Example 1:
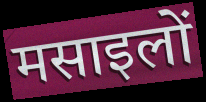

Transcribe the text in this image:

मसाइलों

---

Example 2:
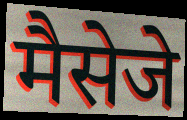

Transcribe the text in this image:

मैसेजे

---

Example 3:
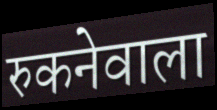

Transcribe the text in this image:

रुकनेवाला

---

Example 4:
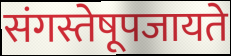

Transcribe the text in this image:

संगस्तेषूपजायते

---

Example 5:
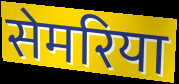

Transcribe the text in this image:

सेमरिया